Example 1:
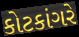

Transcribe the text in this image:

કોટકાંગરે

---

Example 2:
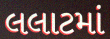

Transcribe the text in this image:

લલાટમાં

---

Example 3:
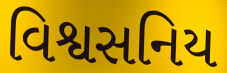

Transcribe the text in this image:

વિશ્વસનિય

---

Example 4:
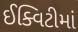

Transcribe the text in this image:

ઈક્વિટીમાં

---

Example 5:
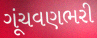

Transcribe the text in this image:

ગૂંચવણભરી